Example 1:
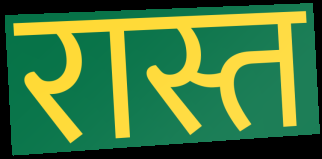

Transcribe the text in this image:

रास्त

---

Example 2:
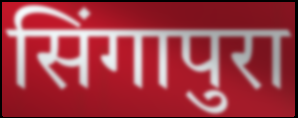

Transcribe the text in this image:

सिंगापुरा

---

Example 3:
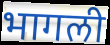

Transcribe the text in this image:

भागली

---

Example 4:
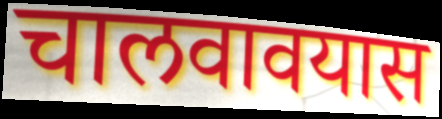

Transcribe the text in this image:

चालवावयास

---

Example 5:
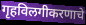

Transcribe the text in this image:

गृहविलगीकरणाचे